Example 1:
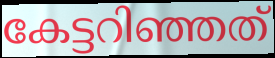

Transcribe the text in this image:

കേട്ടറിഞ്ഞത്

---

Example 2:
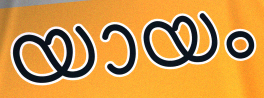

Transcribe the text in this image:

യായം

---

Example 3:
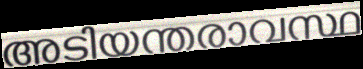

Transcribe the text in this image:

അടിയന്തരാവസ്ഥ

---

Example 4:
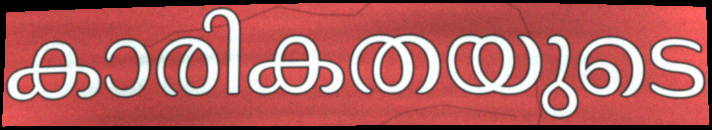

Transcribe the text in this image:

കാരികതയുടെ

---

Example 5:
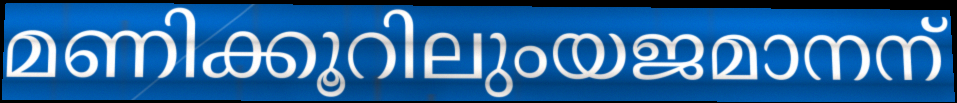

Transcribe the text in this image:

മണിക്കൂറിലുംയജമാനന്